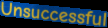
Unsuccessful